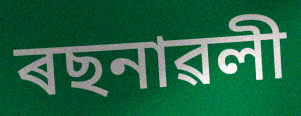
ৰছনাৱলী